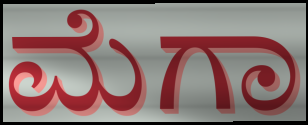
ಮೆಗಾ